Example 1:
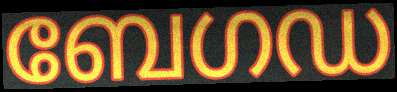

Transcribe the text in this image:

ബേഗഡ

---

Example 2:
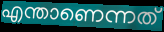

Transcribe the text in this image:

എന്താണെന്നത്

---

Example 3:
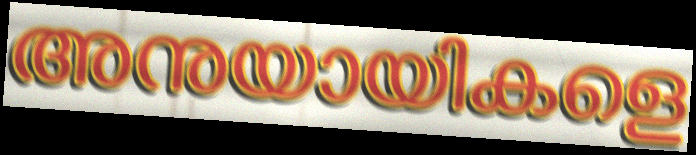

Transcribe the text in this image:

അനുയായികളെ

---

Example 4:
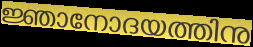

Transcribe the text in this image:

ജ്ഞാനോദയത്തിനു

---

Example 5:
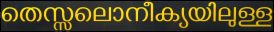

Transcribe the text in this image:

തെസ്സലൊനീക്യയിലുള്ള